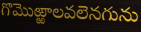
గొమొఱ్ఱాలవలెనగును